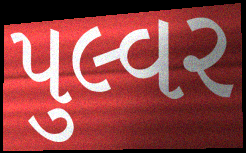
પુલ્વર